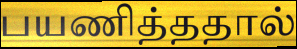
பயணித்ததால்